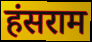
हंसराम